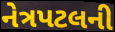
નેત્રપટલની